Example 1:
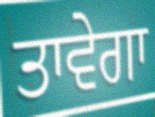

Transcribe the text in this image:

ਤਾਵੇਗਾ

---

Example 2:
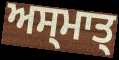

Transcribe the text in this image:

ਅਸ੍ਮਾਤ੍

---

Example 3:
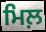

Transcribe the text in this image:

ਮਿਲ਼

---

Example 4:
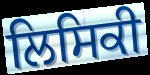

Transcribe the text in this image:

ਲਿਸਿਕੀ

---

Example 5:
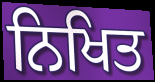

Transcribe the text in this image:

ਨਿਖਿਤ